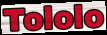
Tololo